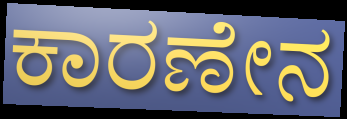
ಕಾರಣೇನ